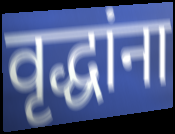
वृद्धांना